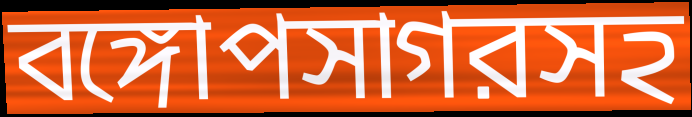
বঙ্গোপসাগরসহ